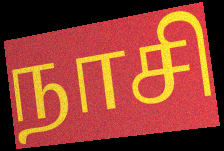
நாசி